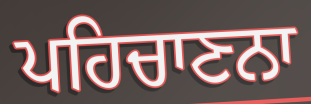
ਪਹਿਚਾਣਨਾ